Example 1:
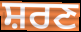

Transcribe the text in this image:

ਸ਼ਰਣ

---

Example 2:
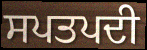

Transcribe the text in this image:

ਸਪਤਪਦੀ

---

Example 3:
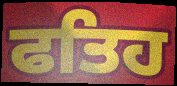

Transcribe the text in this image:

ਫਤਿਹ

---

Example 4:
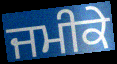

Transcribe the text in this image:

ਜਮੀਕੇ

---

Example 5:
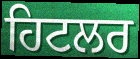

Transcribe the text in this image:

ਹਿਟਲਰ